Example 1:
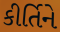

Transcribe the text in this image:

કીર્તિને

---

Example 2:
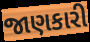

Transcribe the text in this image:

જાણકારી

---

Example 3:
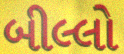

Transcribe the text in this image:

બીલ્લો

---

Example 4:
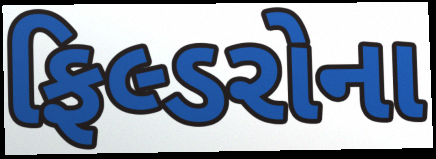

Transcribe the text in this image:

ફિલ્ડરોના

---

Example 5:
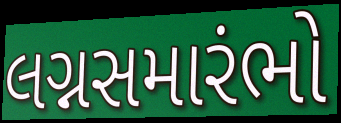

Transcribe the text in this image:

લગ્નસમારંભો